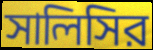
সালিসির